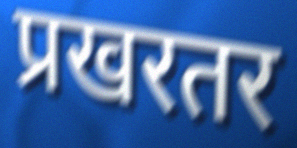
प्रखरतर